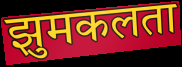
झुमकलता